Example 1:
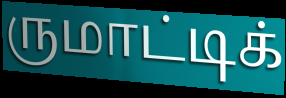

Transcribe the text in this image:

ருமாட்டிக்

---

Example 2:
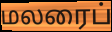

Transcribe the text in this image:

மலரைப்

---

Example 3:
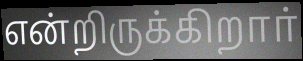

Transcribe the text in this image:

என்றிருக்கிறார்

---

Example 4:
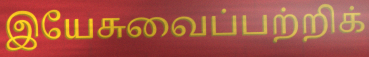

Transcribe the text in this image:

இயேசுவைப்பற்றிக்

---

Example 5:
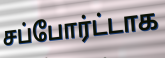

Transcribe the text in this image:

சப்போர்ட்டாக